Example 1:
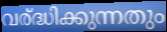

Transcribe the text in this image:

വര്ദ്ധിക്കുന്നതും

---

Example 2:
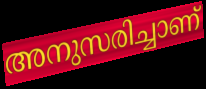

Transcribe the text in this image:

അനുസരിച്ചാണ്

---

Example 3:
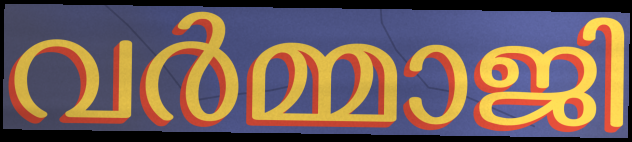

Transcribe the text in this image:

വർമ്മാജി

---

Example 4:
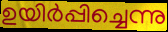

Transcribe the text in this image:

ഉയിർപ്പിച്ചെന്നു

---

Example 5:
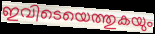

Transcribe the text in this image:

ഇവിടെയെത്തുകയും